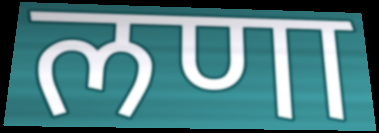
लणा